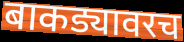
बाकड्यावरच